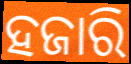
ହଜାରି